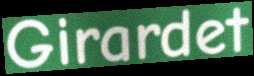
Girardet